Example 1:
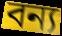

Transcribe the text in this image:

বন্য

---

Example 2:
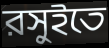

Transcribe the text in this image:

রসুইতে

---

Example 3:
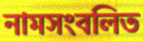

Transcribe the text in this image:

নামসংবলিত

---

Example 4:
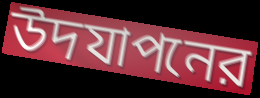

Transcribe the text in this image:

উদযাপনের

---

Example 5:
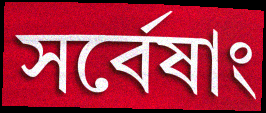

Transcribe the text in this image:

সর্বেষাং